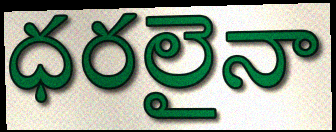
ధరలైనా